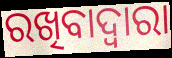
ରଖିବାଦ୍ୱାରା